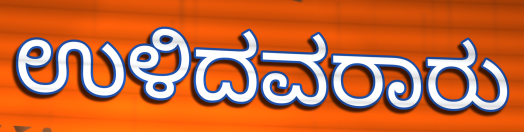
ಉಳಿದವರಾರು